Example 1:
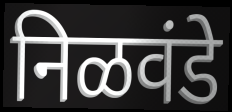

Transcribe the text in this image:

निळवंडे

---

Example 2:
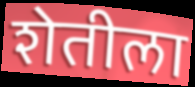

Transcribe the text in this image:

शेतीला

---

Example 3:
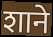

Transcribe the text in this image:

शाने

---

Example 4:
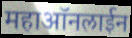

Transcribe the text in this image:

महाऑनलाईन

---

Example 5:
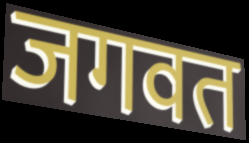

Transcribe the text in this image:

जगवत